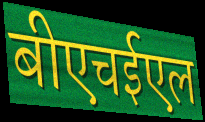
बीएचईएल